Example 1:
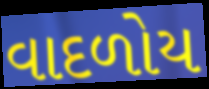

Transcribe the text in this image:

વાદળોય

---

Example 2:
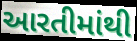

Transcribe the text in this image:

આરતીમાંથી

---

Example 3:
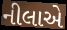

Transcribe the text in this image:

નીલાએ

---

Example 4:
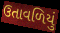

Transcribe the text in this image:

ઉતાવળિયું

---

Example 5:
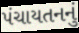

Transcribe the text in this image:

પંચાયતનનું